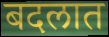
बदलात